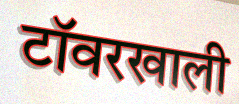
टॉवरखाली